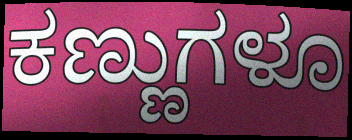
ಕಣ್ಣುಗಳೂ